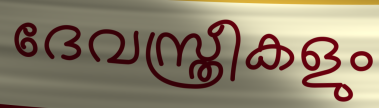
ദേവസ്ത്രീകളും